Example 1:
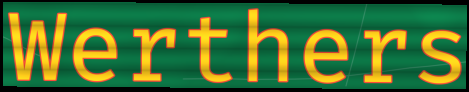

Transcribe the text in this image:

Werthers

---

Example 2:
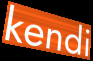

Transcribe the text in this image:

kendi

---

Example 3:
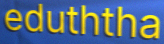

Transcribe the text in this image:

eduththa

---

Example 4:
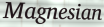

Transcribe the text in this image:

Magnesian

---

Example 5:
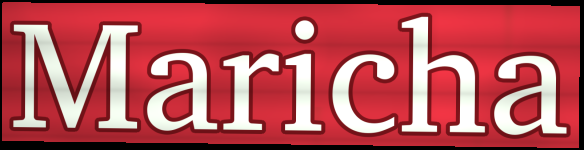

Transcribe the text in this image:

Maricha